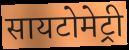
सायटोमेट्री